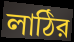
লাঠির